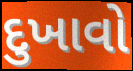
દુખાવો